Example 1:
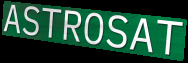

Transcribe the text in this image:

ASTROSAT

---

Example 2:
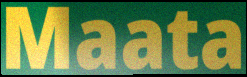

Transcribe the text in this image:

Maata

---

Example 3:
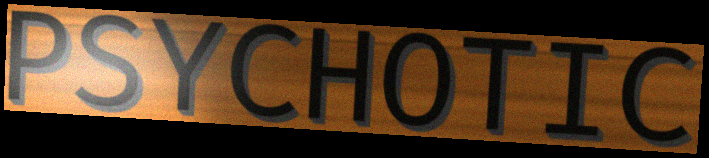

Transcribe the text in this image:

PSYCHOTIC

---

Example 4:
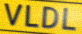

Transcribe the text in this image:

VLDL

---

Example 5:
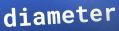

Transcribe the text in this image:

diameter